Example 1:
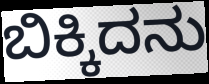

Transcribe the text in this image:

ಬಿಕ್ಕಿದನು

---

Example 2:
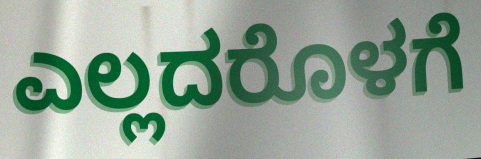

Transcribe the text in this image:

ಎಲ್ಲದರೊಳಗೆ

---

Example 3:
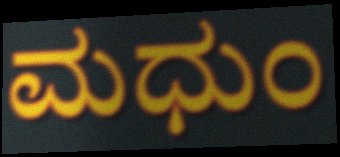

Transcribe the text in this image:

ಮಧುಂ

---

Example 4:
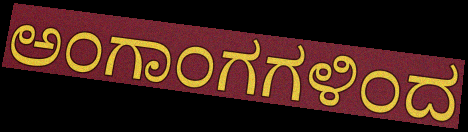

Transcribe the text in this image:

ಅಂಗಾಂಗಗಳಿಂದ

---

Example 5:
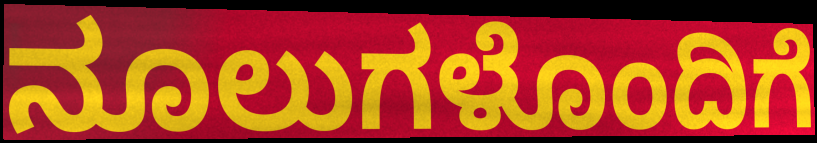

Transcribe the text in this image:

ನೂಲುಗಳೊಂದಿಗೆ